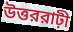
উত্তররাঢ়ী